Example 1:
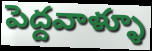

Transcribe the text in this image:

పెద్దవాళ్ళూ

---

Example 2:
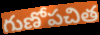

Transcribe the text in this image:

గుణోపచిత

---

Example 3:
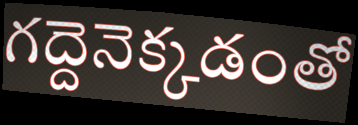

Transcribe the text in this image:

గద్దెనెక్కడంతో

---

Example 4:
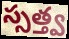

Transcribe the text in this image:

స్సత్త్వ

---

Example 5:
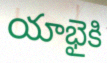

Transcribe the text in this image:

యాభైకి